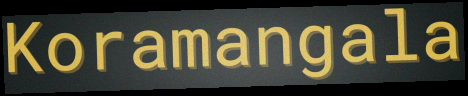
Koramangala